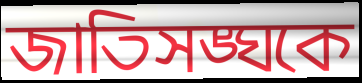
জাতিসঙ্ঘকে